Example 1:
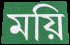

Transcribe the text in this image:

ময়ি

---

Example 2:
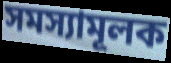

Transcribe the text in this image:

সমস্যামূলক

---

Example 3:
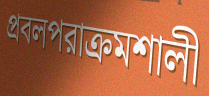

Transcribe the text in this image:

প্রবলপরাক্রমশালী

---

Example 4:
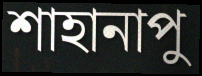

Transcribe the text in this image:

শাহানাপু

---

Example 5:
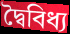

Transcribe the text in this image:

দ্বৈবিধ্য